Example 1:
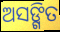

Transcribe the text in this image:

ଅସଙ୍ଗିତ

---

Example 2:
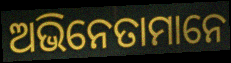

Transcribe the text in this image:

ଅଭିନେତାମାନେ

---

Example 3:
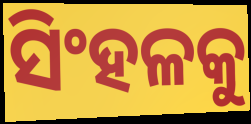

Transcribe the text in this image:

ସିଂହଳକୁ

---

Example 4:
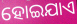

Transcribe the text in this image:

ହୋଇଯାଏ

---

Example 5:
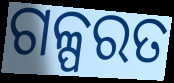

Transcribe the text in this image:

ଗଳ୍ପରତ